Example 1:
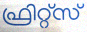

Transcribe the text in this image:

ഫ്രിറ്റ്സ്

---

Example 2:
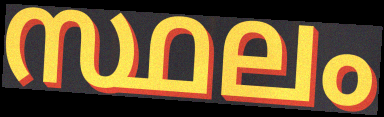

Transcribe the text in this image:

സ്ഥലം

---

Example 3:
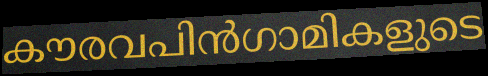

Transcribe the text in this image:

കൗരവപിൻഗാമികളുടെ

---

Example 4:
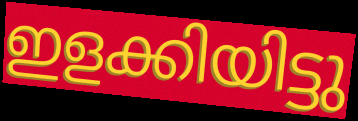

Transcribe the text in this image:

ഇളക്കിയിട്ടു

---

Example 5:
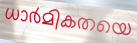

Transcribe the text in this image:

ധാർമികതയെ